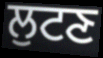
ਲੁਟਣ